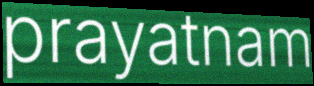
prayatnam